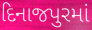
દિનાજપુરમાં